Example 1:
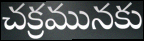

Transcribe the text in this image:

చక్రమునకు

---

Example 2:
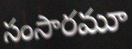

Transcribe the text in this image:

సంసారమూ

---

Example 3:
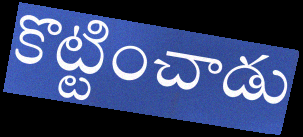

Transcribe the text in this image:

కొట్టించాడు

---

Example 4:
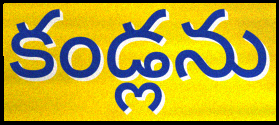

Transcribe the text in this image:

కండ్లను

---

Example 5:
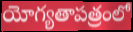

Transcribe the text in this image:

యోగ్యతాపత్రంలో